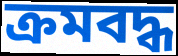
ক্ৰমবদ্ধ